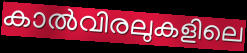
കാൽവിരലുകളിലെ